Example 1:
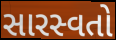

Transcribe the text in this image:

સારસ્વતો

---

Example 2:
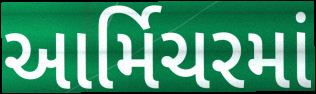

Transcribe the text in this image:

આર્મિચરમાં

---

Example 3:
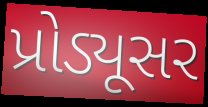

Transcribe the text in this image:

પ્રોડ્યૂસર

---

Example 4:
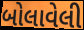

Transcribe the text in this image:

બોલાવેલી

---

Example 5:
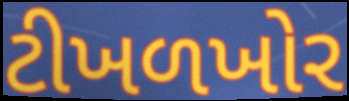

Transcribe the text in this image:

ટીખળખોર